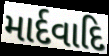
માર્દવાદિ